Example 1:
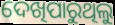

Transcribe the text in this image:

ଦେଖିପାରୁଥିଲୁ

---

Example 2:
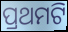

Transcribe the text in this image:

ପ୍ରଥମଟି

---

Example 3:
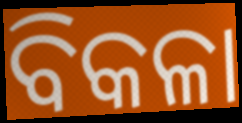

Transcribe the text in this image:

ବିକଳା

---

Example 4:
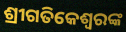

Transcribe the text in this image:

ଶ୍ରୀଗତିକେଶ୍ବରଙ୍କ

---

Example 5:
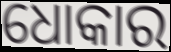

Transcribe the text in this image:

ଧୋକାର